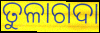
ତୁଳାଗଦା